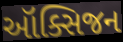
ઑક્સિજન